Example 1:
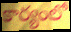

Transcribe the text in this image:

కార్యంలో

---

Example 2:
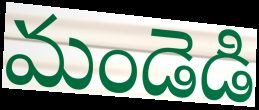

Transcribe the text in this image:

మండెడి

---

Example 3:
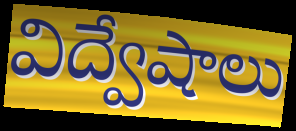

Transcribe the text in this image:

విద్వేషాలు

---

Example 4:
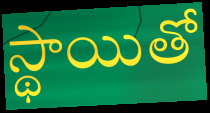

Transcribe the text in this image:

స్థాయితో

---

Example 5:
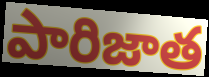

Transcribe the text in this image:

పారిజాత